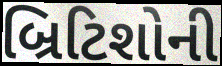
બ્રિટિશોની